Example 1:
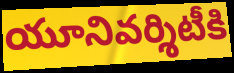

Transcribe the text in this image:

యూనివర్శిటీకి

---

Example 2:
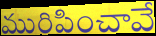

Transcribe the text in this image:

మురిపించావే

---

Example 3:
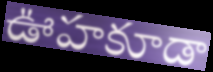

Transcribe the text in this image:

ఊహకూడా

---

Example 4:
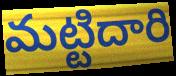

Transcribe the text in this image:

మట్టిదారి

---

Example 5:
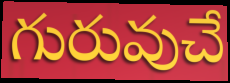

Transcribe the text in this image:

గురువుచే